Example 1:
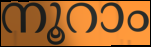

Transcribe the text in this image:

നൂറാം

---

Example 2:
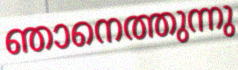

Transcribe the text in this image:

ഞാനെത്തുന്നു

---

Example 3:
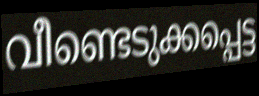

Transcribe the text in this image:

വീണ്ടെടുക്കപ്പെട്ട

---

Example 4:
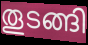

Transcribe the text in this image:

തൂടങ്ങി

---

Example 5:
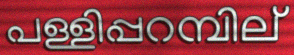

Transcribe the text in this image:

പള്ളിപ്പറമ്പില്